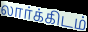
லார்க்கிடம்